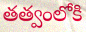
తత్వంలోకి